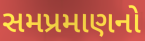
સમપ્રમાણનો